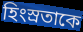
হিংস্রতাকে